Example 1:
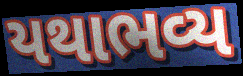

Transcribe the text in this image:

યથાભવ્ય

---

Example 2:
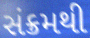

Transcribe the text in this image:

સંક્રમથી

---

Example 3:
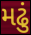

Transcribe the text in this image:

મઢું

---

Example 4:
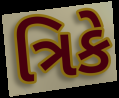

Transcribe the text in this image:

ત્રિકે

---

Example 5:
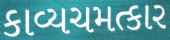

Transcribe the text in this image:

કાવ્યચમત્કાર